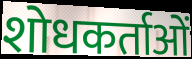
शोधकर्ताओं